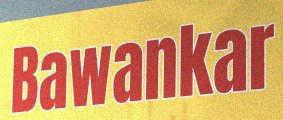
Bawankar